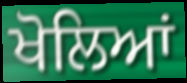
ਖੋਲਿਆਂ